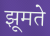
झूमते